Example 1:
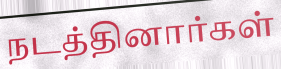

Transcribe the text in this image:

நடத்தினார்கள்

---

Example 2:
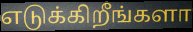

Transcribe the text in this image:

எடுக்கிறீங்களா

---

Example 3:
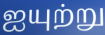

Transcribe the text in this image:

ஐயுற்று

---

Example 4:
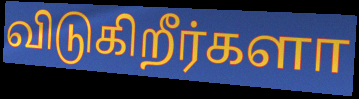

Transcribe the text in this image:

விடுகிறீர்களா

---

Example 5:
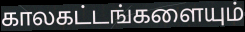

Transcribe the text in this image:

காலகட்டங்களையும்